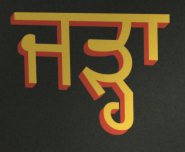
ਜੜ੍ਹਾ